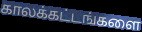
காலக்கட்டங்களை